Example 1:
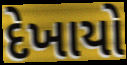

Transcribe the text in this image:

દેખાયો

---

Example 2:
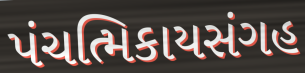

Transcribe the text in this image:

પંચત્મિકાયસંગહ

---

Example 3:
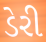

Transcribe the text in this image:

ડેરી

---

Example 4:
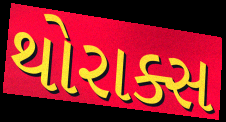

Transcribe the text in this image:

થોરાક્સ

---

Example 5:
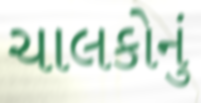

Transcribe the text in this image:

ચાલકોનું